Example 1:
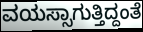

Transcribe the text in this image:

ವಯಸ್ಸಾಗುತ್ತಿದ್ದಂತೆ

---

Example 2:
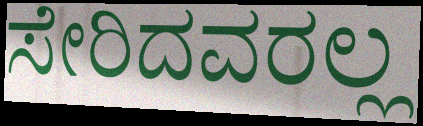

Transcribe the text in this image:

ಸೇರಿದವರಲ್ಲ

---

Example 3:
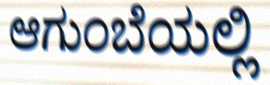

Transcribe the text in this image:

ಆಗುಂಬೆಯಲ್ಲಿ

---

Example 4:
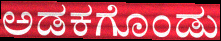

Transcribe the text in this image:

ಅಡಕಗೊಂಡು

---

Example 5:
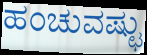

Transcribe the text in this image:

ಹಂಚುವಷ್ಟು